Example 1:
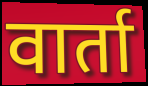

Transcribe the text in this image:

वार्ता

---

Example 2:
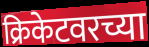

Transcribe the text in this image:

क्रिकेटवरच्या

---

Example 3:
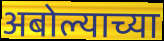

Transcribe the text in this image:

अबोल्याच्या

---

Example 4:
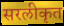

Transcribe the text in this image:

सरलीकृत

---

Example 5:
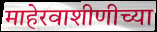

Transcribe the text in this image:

माहेरवाशीणीच्या